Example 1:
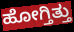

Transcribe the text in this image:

ಹೋಗ್ತಿತ್ತು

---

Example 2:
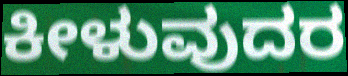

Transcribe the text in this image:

ಕೀಳುವುದರ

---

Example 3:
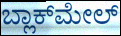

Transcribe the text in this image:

ಬ್ಲಾಕ್‌ಮೇಲ್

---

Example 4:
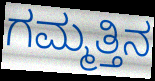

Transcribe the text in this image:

ಗಮ್ಮತ್ತಿನ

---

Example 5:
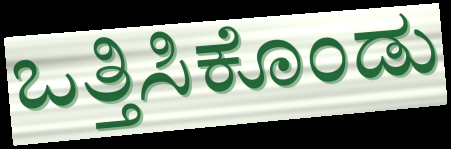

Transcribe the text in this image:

ಒತ್ತಿಸಿಕೊಂಡು